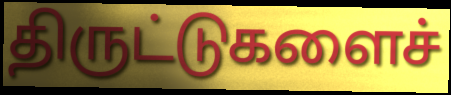
திருட்டுகளைச்